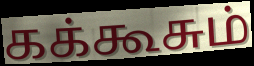
கக்கூசும்